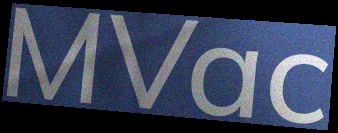
MVac